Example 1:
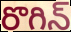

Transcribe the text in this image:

రొగిన్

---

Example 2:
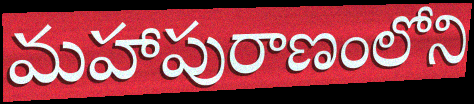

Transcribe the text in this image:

మహాపురాణంలోని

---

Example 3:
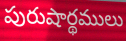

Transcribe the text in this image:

పురుషార్థములు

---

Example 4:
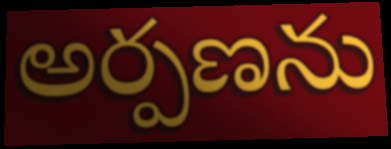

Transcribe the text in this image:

అర్పణను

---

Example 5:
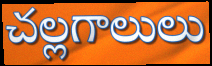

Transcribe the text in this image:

చల్లగాలులు